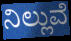
ನಿಲ್ಲುವೆ